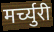
मर्च्युरी